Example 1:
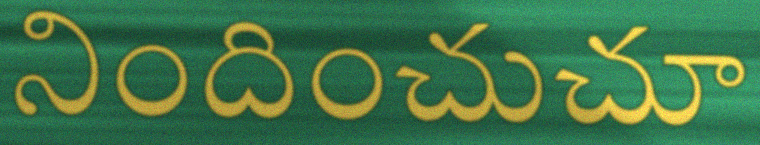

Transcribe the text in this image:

నిందించుచూ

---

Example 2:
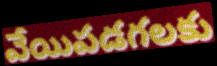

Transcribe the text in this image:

వేయిపడగలకు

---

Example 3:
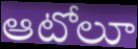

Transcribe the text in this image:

ఆటోలూ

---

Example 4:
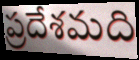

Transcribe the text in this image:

ప్రదేశమది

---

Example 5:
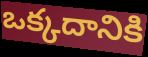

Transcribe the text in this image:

ఒక్కదానికి